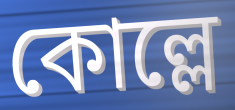
কোল্লে